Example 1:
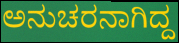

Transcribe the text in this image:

ಅನುಚರನಾಗಿದ್ದ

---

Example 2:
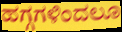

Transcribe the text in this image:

ಹಗ್ಗಗಳಿಂದಲೂ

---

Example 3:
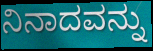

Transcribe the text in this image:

ನಿನಾದವನ್ನು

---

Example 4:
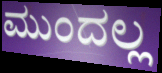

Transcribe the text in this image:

ಮುಂದಲ್ಲ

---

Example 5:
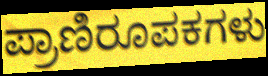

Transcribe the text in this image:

ಪ್ರಾಣಿರೂಪಕಗಳು